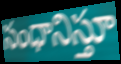
సంధానిస్తూ